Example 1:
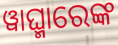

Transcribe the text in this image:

ୱାଘ୍ମାରେଙ୍କ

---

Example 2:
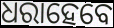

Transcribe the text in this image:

ଧରାହେବେ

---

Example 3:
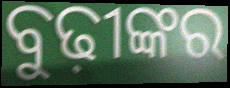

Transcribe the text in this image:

ବୁଢ଼ୀଙ୍କର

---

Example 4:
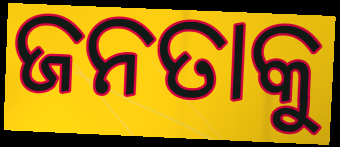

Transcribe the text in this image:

ଜନତାକୁ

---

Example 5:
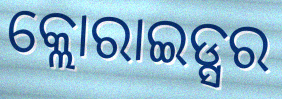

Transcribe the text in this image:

କ୍ଲୋରାଇଡ୍ସର